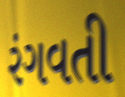
રંગવતી